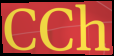
CCh